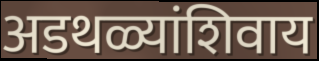
अडथळ्यांशिवाय